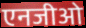
एनजीओ